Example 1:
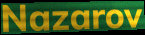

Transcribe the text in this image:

Nazarov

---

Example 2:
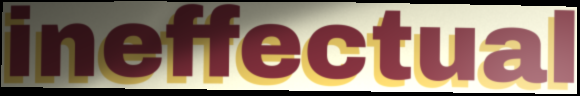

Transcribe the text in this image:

ineffectual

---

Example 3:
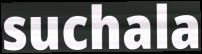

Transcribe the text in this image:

suchala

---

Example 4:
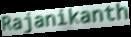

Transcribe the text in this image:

Rajanikanth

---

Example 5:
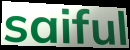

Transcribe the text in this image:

saiful